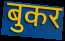
बुकर